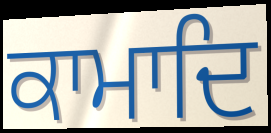
ਕਾਮਾਦਿ